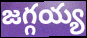
జగ్గయ్య